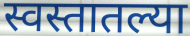
स्वस्तातल्या